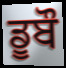
ਡੂਬੌ